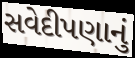
સવેદીપણાનું